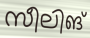
സീലിങ്